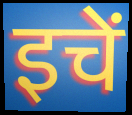
इचें